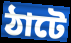
ঠাটে